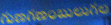
గుణగణంబులుగల